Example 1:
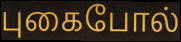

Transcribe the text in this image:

புகைபோல்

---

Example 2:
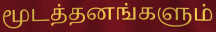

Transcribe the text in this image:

மூடத்தனங்களும்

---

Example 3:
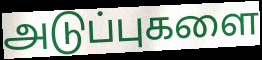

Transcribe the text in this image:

அடுப்புகளை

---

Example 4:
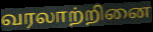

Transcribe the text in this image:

வரலாற்றினை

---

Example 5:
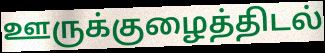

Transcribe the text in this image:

ஊருக்குழைத்திடல்